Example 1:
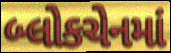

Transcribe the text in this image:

બ્લોકચેનમાં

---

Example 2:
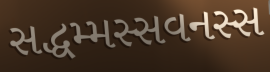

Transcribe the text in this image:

સદ્ધમ્મસ્સવનસ્સ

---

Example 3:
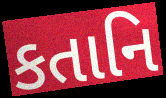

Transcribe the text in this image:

કતાનિ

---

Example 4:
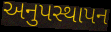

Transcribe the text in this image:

અનુપસ્થાપન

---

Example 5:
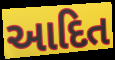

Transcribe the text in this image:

આદિત